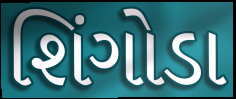
શિંગોડા